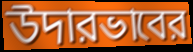
উদারভাবের